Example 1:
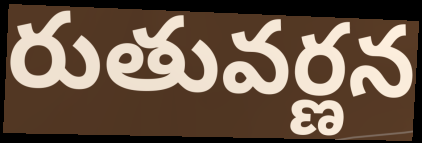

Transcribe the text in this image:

రుతువర్ణన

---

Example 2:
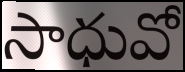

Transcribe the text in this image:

సాధువో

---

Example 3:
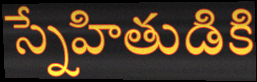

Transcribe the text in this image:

స్నేహితుడికి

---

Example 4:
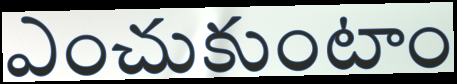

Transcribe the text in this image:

ఎంచుకుంటాం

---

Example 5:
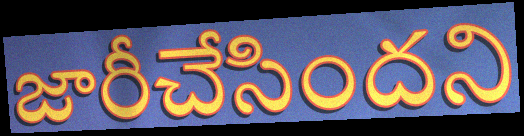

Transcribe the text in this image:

జారీచేసిందని